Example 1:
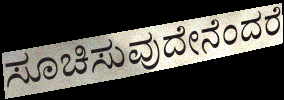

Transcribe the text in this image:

ಸೂಚಿಸುವುದೇನೆಂದರೆ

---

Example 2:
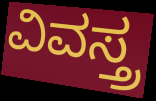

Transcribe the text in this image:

ವಿವಸ್ತ್ರ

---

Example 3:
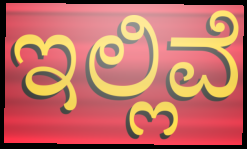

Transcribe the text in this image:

ಇಲ್ಲಿವೆ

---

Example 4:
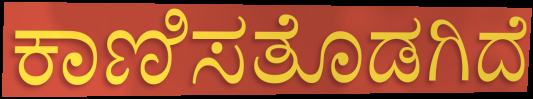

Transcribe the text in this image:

ಕಾಣಿಸತೊಡಗಿದೆ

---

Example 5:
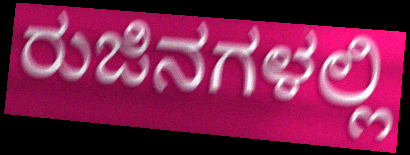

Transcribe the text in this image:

ರುಜಿನಗಳಲ್ಲಿ